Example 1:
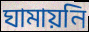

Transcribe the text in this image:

ঘামায়নি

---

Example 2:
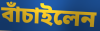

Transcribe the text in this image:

বাঁচাইলেন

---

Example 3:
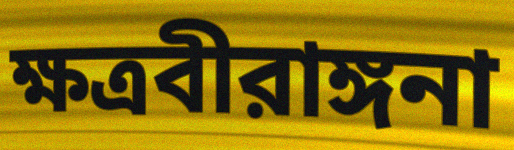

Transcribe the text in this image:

ক্ষত্রবীরাঙ্গনা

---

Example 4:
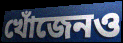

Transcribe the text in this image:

খোঁজেনও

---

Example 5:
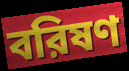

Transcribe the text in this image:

বরিষণ